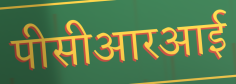
पीसीआरआई